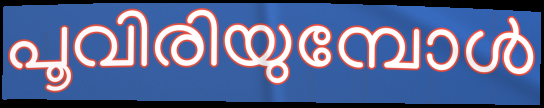
പൂവിരിയുമ്പോൾ